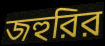
জহুরির